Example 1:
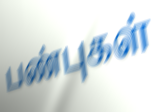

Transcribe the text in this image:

பண்புகள்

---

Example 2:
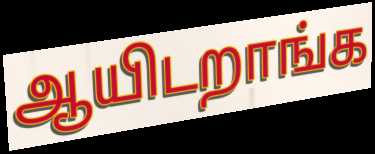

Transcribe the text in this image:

ஆயிடறாங்க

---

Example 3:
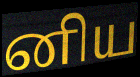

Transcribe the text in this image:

னிய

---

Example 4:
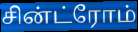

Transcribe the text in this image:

சின்ட்ரோம்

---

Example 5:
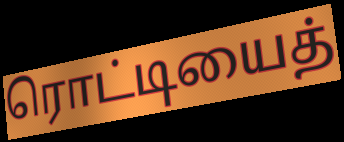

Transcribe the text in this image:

ரொட்டியைத்